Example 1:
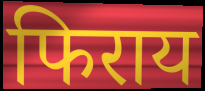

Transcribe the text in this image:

फिराय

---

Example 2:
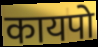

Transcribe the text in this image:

कायपो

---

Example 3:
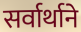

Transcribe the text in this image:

सर्वार्थाने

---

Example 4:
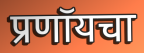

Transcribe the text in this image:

प्रणॉयचा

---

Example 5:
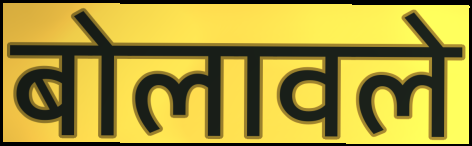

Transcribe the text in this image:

बोलावले